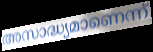
അസാദ്ധ്യമാണെന്ന്